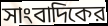
সাংবাদিকের